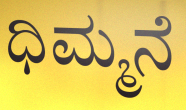
ಧಿಮ್ಮನೆ